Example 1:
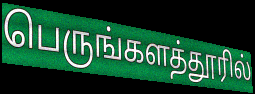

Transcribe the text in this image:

பெருங்களத்தூரில்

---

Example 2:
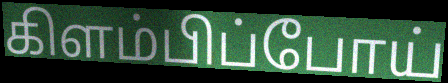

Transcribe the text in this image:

கிளம்பிப்போய்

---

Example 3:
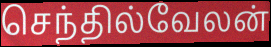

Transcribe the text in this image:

செந்தில்வேலன்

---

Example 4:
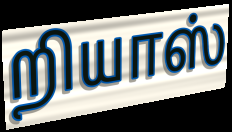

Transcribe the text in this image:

றியாஸ்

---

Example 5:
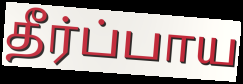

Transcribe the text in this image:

தீர்ப்பாய